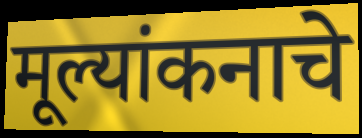
मूल्यांकनाचे